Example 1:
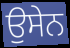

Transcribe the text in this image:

ਉਸੇਨ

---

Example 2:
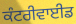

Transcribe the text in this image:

ਕੰਟਰੀਵਾਈਡ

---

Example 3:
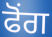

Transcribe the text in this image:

ਫੋਂਗ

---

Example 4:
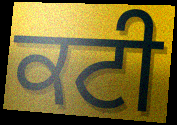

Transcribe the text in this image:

ਕਟੀ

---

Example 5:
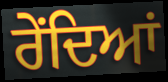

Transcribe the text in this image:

ਰੇਂਦਿਆਂ